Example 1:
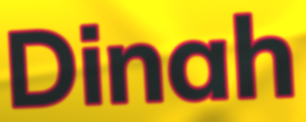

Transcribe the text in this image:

Dinah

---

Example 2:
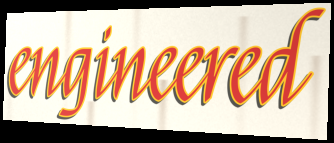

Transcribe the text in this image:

engineered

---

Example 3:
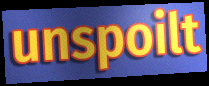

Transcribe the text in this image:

unspoilt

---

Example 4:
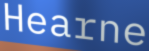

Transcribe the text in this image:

Hearne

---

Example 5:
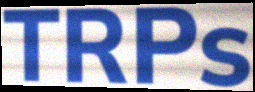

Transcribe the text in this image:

TRPs